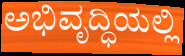
ಅಭಿವೃದ್ಧಿಯಲ್ಲಿ